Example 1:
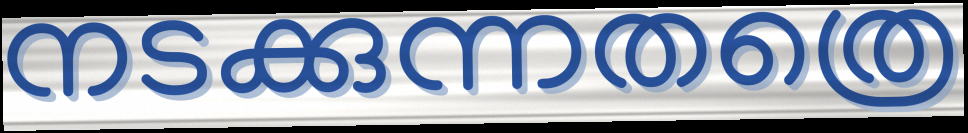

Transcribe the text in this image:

നടക്കുന്നതത്രെ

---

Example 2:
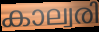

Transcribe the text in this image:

കാല്വരി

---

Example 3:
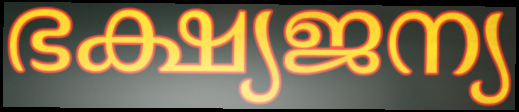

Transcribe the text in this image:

ഭക്ഷ്യജന്യ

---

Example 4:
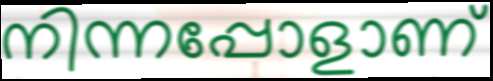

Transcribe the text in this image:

നിന്നപ്പോളാണ്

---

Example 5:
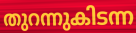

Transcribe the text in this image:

തുറന്നുകിടന്ന